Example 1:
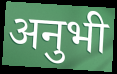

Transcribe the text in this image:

अनुभी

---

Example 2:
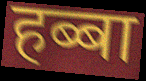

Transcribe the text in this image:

हब्‍बा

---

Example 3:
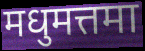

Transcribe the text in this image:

मधुमत्तमा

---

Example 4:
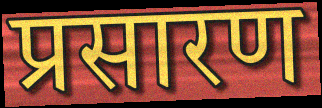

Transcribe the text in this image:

प्रसारण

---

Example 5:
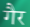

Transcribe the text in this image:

गैर